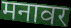
मनावर